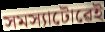
সমস্যাটোৱেই